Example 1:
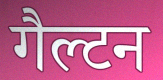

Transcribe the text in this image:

गैल्टन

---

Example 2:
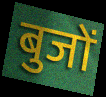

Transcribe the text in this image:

बुजों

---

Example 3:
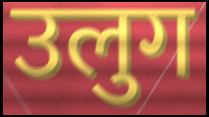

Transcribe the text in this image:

उलुग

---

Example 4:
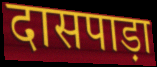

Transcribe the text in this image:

दासपाड़ा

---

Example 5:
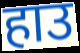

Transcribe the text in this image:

हाउ